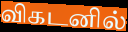
விகடனில்